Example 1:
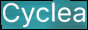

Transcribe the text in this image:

Cyclea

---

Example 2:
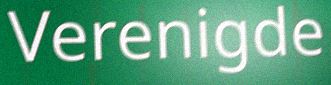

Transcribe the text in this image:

Verenigde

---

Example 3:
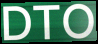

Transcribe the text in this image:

DTO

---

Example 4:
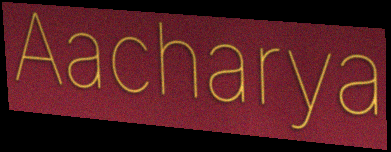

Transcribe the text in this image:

Aacharya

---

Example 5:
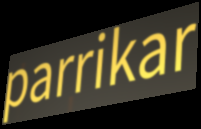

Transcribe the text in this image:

parrikar